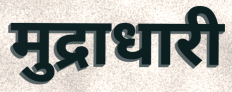
मुद्राधारी